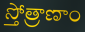
స్తోత్రాణాం